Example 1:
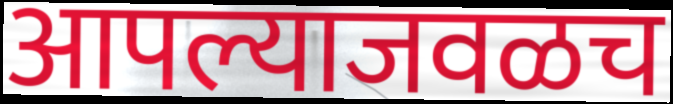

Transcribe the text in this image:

आपल्याजवळच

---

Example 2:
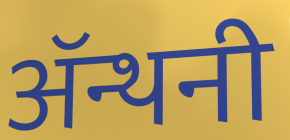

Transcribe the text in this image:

ॲन्थनी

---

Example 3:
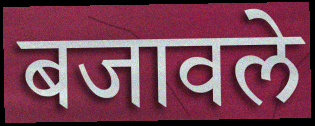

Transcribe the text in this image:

बजावले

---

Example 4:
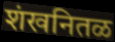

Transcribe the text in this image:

शंखनितळ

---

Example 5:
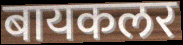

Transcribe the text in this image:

बायकलर